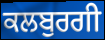
ਕਲਬੁਰਗੀ